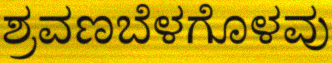
ಶ್ರವಣಬೆಳಗೊಳವು